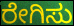
ರೇಗಿಸು